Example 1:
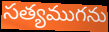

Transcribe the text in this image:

సత్యముగను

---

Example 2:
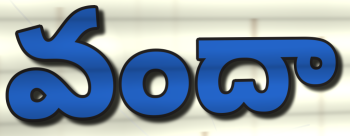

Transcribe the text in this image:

వందా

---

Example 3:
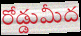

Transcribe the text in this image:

రోడ్డుమీద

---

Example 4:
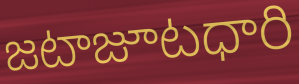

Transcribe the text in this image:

జటాజూటధారి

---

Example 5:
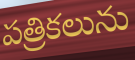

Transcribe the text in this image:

పత్రికలును